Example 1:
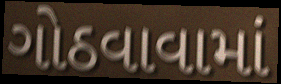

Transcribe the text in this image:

ગોઠવાવામાં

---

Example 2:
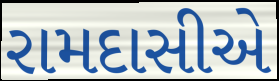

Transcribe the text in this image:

રામદાસીએ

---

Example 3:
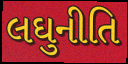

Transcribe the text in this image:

લઘુનીતિ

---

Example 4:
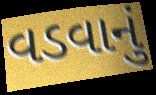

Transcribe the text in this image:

વડવાનું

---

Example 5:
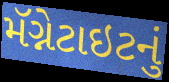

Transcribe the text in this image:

મૅગ્નેટાઇટનું